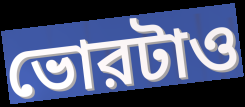
ভোরটাও